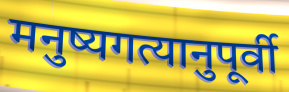
मनुष्यगत्यानुपूर्वी